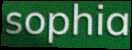
sophia